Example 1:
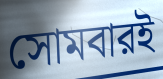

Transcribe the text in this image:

সোমবারই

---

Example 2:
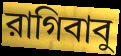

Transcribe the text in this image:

রাগিবাবু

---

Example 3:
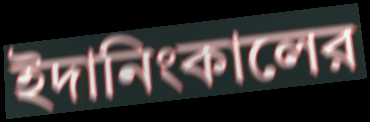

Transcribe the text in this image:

ইদানিংকালের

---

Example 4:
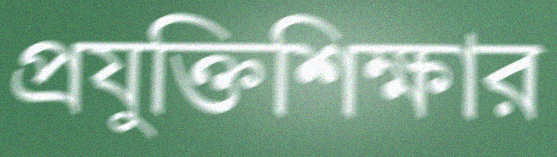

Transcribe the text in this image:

প্রযুক্তিশিক্ষার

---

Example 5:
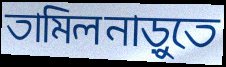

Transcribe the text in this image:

তামিলনাড়ুতে